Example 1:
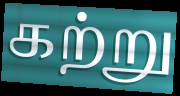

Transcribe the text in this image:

கற்று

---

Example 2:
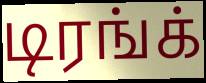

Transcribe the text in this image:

டிரங்க்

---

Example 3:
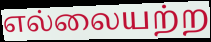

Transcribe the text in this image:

எல்லையற்ற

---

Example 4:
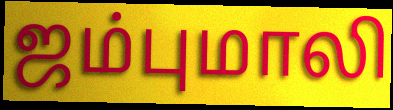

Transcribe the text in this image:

ஜம்புமாலி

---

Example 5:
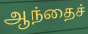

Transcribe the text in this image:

ஆந்தைச்